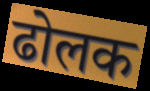
ढोलक